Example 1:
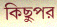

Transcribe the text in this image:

কিছুপর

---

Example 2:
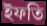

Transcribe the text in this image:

ইফতি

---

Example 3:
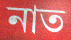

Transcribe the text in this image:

নাত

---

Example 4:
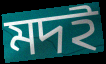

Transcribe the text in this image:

মদই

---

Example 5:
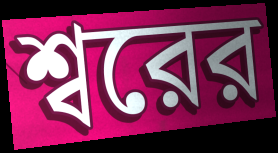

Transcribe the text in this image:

শ্বরের